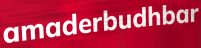
amaderbudhbar